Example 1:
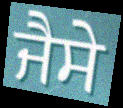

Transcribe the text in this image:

ਜੈਸੇ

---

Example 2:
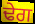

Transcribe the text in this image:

ਢੇਗ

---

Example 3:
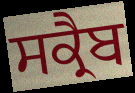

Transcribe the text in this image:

ਸਕ੍ਰੈਬ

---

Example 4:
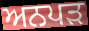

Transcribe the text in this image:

ਅਨਪੜ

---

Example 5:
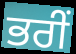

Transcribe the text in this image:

ਭਰੀਂ